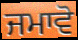
ਜਮਾਵੋ